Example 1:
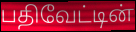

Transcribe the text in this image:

பதிவேட்டின்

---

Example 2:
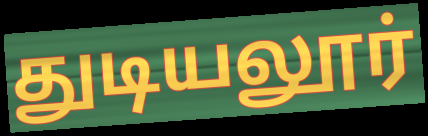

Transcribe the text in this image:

துடியலூர்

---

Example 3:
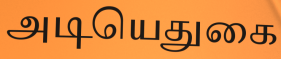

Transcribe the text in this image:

அடியெதுகை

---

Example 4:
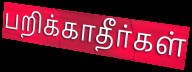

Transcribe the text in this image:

பறிக்காதீர்கள்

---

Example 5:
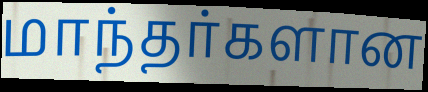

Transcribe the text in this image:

மாந்தர்களான